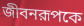
জীবনরূপকে